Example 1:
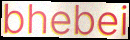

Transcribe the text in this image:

bhebei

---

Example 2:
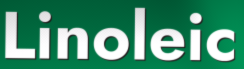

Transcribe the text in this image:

Linoleic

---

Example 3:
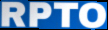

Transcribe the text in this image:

RPTO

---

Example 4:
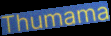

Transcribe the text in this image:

Thumama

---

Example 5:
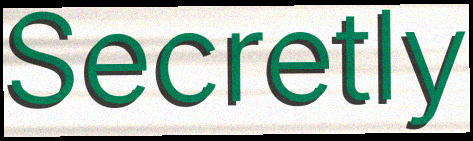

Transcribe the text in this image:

Secretly